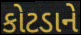
કોટડાને